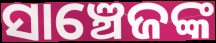
ସାଞ୍ଚେଜଙ୍କ